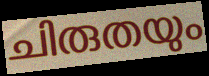
ചിരുതയും